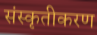
संस्कृतीकरण